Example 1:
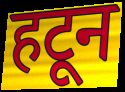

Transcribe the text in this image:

हटून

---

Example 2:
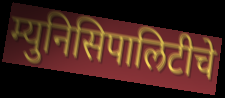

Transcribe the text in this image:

म्युनिसिपालिटीचे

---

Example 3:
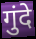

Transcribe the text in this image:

गुंदे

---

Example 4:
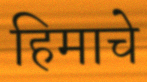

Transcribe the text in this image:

हिमाचे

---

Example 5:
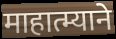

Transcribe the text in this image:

माहात्म्याने